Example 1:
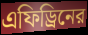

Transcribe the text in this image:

এফিড্রিনের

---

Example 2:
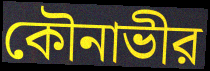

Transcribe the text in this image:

কৌনাভীর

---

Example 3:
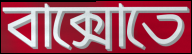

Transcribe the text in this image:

বাক্সোতে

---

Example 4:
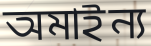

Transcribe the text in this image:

অমাইন্য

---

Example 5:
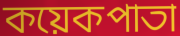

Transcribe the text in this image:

কয়েকপাতা